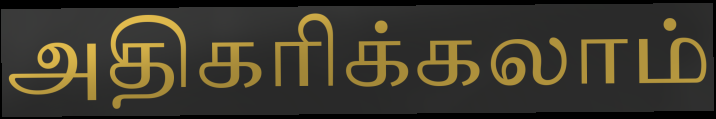
அதிகரிக்கலாம்